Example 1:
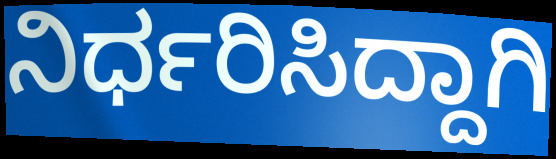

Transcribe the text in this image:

ನಿರ್ಧರಿಸಿದ್ದಾಗಿ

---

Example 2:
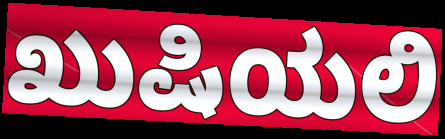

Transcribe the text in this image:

ಖುಷಿಯಲಿ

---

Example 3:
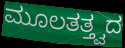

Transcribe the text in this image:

ಮೂಲತತ್ತ್ವದ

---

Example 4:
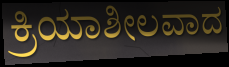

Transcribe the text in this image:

ಕ್ರಿಯಾಶೀಲವಾದ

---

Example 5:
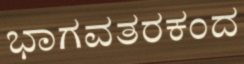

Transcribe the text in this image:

ಭಾಗವತರಕಂದ